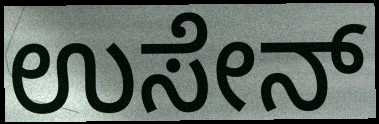
ಉಸೇನ್